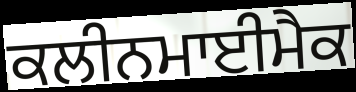
ਕਲੀਨਮਾਈਮੈਕ